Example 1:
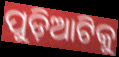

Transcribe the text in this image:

ପୁଡ଼ିଆଟିକୁ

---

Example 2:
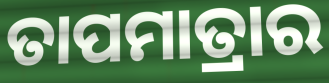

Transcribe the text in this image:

ତାପମାତ୍ରାର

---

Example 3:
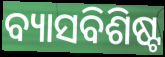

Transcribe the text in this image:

ବ୍ୟାସବିଶିଷ୍ଟ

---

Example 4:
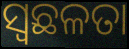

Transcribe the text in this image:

ସ୍ଵଛଳତା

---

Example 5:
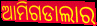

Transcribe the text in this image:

ଆମିଗଡାଲାର